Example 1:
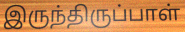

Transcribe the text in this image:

இருந்திருப்பாள்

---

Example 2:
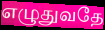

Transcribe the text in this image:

எழுதுவதே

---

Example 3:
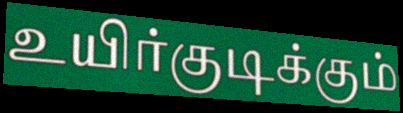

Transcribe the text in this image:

உயிர்குடிக்கும்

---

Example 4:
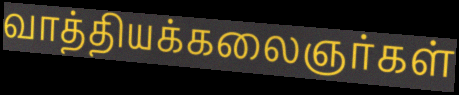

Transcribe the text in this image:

வாத்தியக்கலைஞர்கள்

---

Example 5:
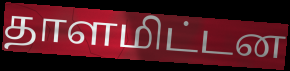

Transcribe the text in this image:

தாளமிட்டன